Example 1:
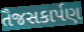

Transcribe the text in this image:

તૈજસકાર્પણ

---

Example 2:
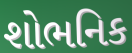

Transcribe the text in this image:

શોભનિક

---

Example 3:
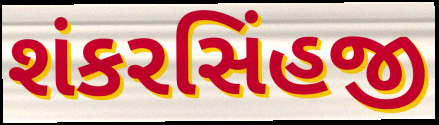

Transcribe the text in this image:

શંકરસિંહજી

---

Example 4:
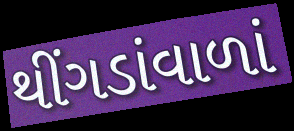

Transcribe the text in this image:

થીંગડાંવાળાં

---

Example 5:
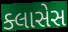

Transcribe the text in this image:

ક્લાસેસ